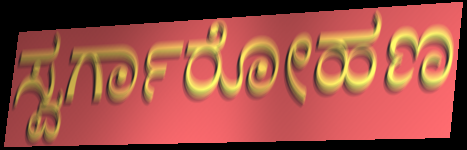
ಸ್ವರ್ಗಾರೋಹಣ